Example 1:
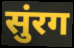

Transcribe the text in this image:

सुंरग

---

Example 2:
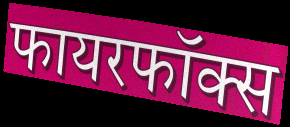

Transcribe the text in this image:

फायरफॉक्स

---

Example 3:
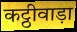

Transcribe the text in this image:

कट्ठीवाड़ा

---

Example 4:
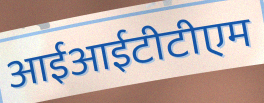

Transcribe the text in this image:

आईआईटीटीएम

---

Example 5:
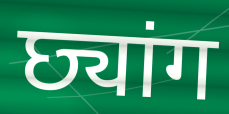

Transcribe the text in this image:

छ्यांग